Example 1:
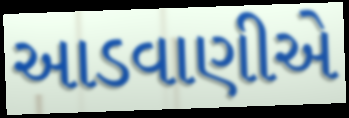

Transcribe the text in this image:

આડવાણીએ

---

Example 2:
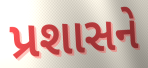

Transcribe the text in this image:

પ્રશાસને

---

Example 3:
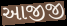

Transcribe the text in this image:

આજીજી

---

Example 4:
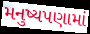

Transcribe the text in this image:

મનુષ્યપણામાં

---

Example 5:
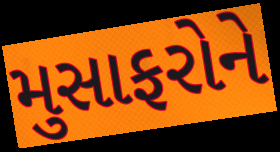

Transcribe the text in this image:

મુસાફરોને